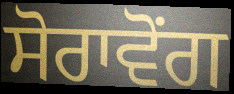
ਸੋਰਾਵੋਂਗ